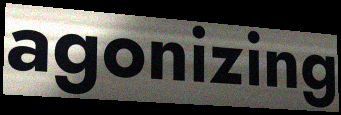
agonizing